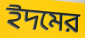
ইদমের